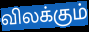
விலக்கும்